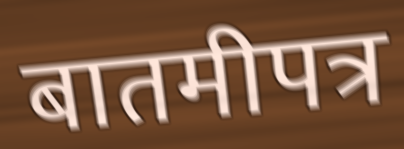
बातमीपत्र